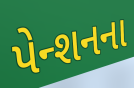
પેન્શનના